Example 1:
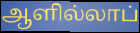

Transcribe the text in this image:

ஆளில்லாப்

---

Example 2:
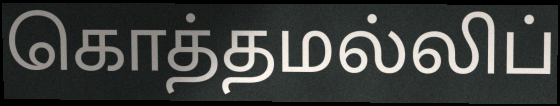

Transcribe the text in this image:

கொத்தமல்லிப்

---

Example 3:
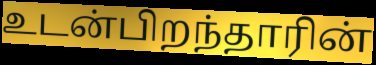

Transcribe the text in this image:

உடன்பிறந்தாரின்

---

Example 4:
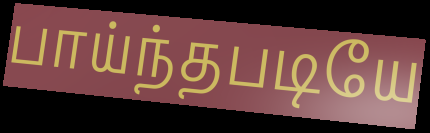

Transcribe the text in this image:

பாய்ந்தபடியே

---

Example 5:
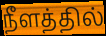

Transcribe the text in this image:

நீளத்தில்